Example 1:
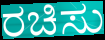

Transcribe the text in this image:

ರಚಿಸು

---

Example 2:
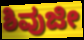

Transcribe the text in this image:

ಶಿವುಜೀ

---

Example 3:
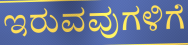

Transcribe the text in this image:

ಇರುವವುಗಳಿಗೆ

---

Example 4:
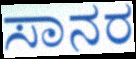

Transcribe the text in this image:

ಸಾನರ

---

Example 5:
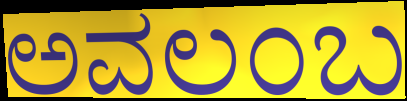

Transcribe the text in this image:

ಅವಲಂಬ